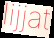
lijjat